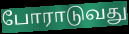
போராடுவது